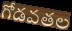
గోడవతల